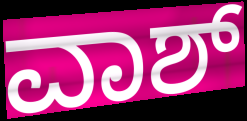
ವಾಶ್